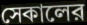
সেকালের